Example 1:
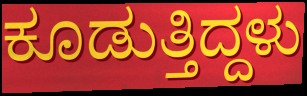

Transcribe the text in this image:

ಕೂಡುತ್ತಿದ್ದಳು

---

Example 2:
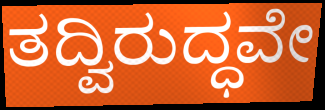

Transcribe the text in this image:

ತದ್ವಿರುದ್ಧವೇ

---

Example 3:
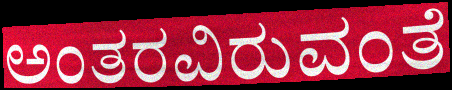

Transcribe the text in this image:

ಅಂತರವಿರುವಂತೆ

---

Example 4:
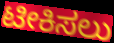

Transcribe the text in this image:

ಟೀಕಿಸಲು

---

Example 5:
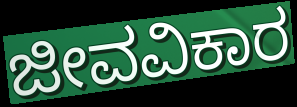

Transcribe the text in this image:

ಜೀವವಿಕಾರ